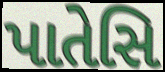
પાતેસિ